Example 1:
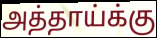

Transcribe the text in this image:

அத்தாய்க்கு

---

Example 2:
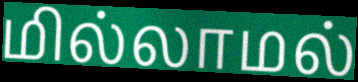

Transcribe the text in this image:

மில்லாமல்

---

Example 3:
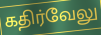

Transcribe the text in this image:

கதிர்வேலு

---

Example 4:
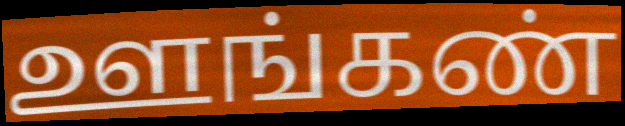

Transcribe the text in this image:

ஊங்கண்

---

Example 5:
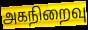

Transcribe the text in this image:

அகநிறைவு